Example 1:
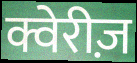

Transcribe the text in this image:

क्वेरीज़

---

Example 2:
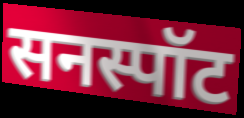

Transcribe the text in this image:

सनस्पॉट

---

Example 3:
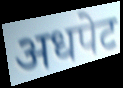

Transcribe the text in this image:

अधपेट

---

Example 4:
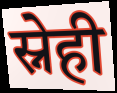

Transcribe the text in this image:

स्नेही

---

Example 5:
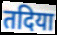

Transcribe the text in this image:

तदिया